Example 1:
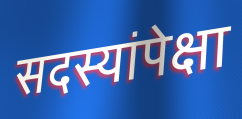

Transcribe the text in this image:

सदस्यांपेक्षा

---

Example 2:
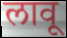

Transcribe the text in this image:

लावू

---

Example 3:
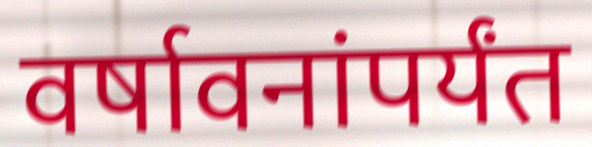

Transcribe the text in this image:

वर्षावनांपर्यंत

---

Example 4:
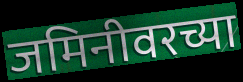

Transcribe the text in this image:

जमिनीवरच्या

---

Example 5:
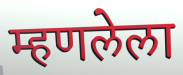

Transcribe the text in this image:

म्हणलेला